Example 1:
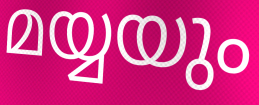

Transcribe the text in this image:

മയ്യയും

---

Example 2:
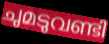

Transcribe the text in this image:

ചുമടുവണ്ടി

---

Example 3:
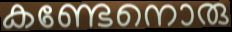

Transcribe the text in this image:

കണ്ടേനൊരു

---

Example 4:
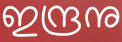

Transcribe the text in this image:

ഇന്ദ്രനു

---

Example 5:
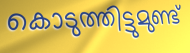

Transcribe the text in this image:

കൊടുത്തിട്ടുമുണ്ട്